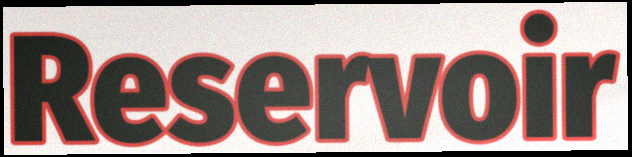
Reservoir